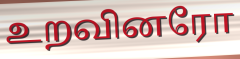
உறவினரோ